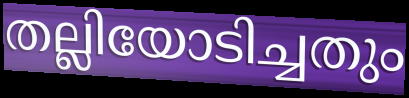
തല്ലിയോടിച്ചതും